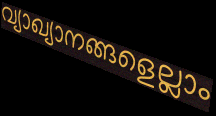
വ്യാഖ്യാനങ്ങളെല്ലാം